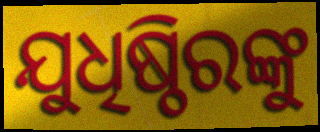
ଯୁଧିଷ୍ଠିରଙ୍କୁ